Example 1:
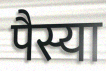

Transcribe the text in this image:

पैस्या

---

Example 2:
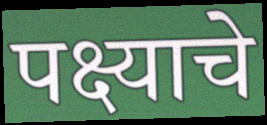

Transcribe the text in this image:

पक्ष्याचे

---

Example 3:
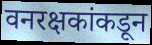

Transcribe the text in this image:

वनरक्षकांकडून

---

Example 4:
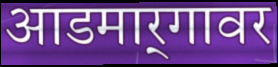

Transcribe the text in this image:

आडमार्गावर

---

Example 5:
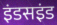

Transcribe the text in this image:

इंडसइंड